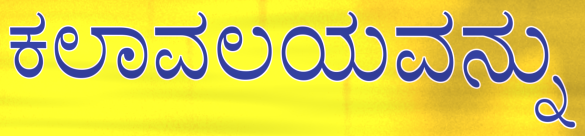
ಕಲಾವಲಯವನ್ನು